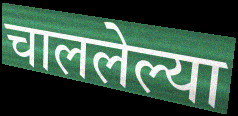
चाललेल्या